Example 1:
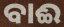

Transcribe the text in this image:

ବାଈ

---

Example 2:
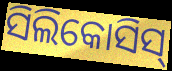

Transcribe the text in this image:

ସିଲିକୋସିସ୍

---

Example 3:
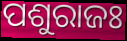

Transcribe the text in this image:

ପଶୁରାଜଃ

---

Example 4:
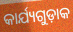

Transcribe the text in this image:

କାର୍ଯ୍ୟଗୁଡ଼ାକ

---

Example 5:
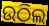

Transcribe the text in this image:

ଉଠିଲ